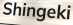
Shingeki